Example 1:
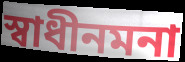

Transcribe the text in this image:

স্বাধীনমনা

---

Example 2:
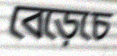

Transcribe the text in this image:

বেড়েচে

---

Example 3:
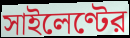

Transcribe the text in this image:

সাইলেণ্টের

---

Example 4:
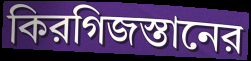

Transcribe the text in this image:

কিরগিজস্তানের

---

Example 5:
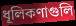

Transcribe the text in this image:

ধূলিকণাগুলি